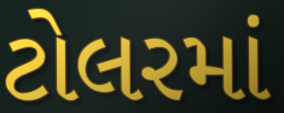
ટોલરમાં